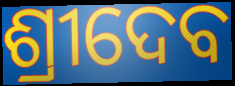
ଶ୍ରୀଦେବ